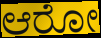
ಆರೋ